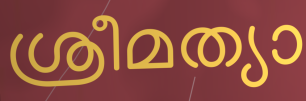
ശ്രീമത്യാ